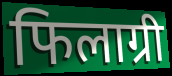
फिलाग्री